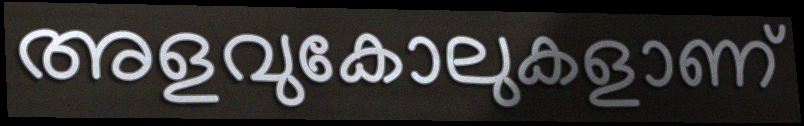
അളവുകോലുകളാണ്